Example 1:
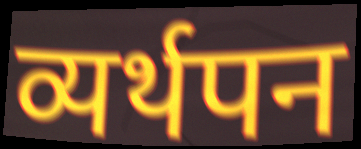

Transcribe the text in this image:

व्यर्थपन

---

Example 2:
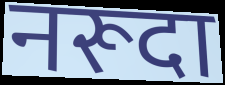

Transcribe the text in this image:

नरूदा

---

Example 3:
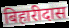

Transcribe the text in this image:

बिहारीदास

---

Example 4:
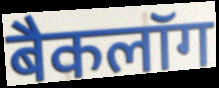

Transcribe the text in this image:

बैकलॉग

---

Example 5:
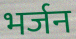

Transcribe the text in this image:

भर्जन